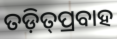
ତଡ଼ିତ୍‍ପ୍ରବାହ